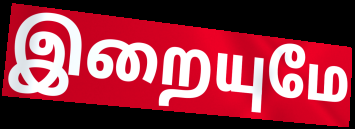
இறையுமே